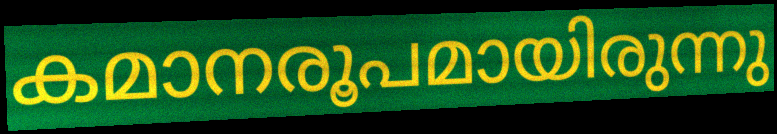
കമാനരൂപമായിരുന്നു